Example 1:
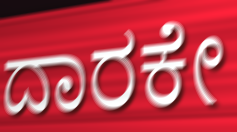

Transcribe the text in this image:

ದಾರಕೇ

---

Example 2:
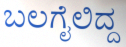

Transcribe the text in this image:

ಬಲಗೈಲಿದ್ದ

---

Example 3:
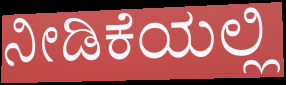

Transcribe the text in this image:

ನೀಡಿಕೆಯಲ್ಲಿ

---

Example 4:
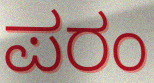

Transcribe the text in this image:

ಪರಂ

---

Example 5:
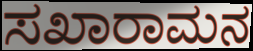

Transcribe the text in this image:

ಸಖಾರಾಮನ